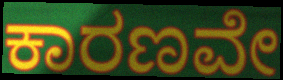
ಕಾರಣವೇ